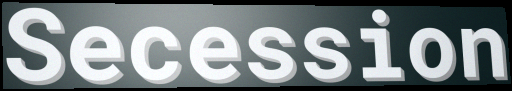
Secession